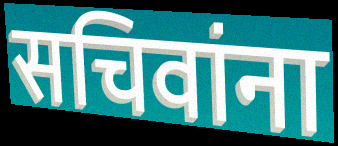
सचिवांना